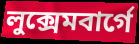
লুক্সেমবার্গে